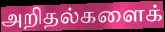
அறிதல்களைக்